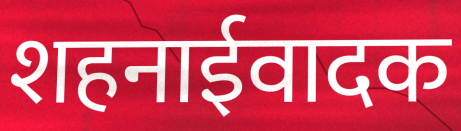
शहनाईवादक